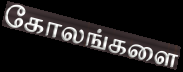
கோலங்களை